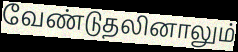
வேண்டுதலினாலும்